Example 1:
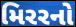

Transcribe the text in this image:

મિરરનો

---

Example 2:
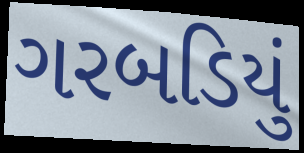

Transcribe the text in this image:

ગરબડિયું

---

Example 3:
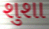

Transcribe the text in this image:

શુશા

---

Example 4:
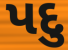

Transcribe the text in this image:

પદુ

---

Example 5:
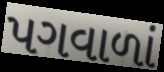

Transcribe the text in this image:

પગવાળાં